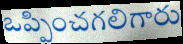
ఒప్పించగలిగారు